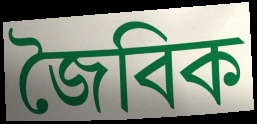
জৈবিক